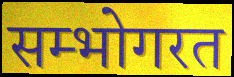
सम्भोगरत